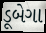
ડૂબેગા